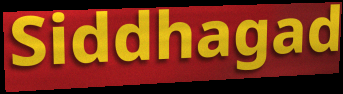
Siddhagad